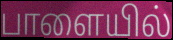
பாளையில்